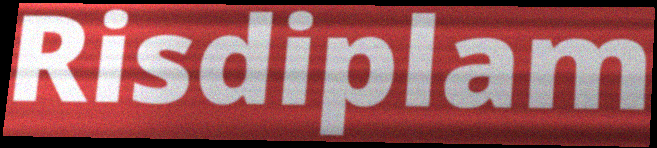
Risdiplam